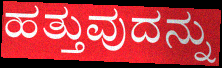
ಹತ್ತುವುದನ್ನು